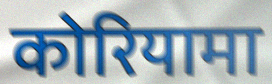
कोरियामा